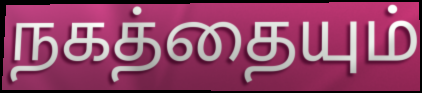
நகத்தையும்